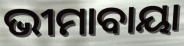
ଭୀମାବାୟା